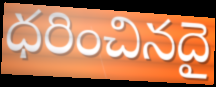
ధరించినదై